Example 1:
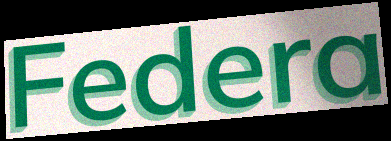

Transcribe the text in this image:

Federa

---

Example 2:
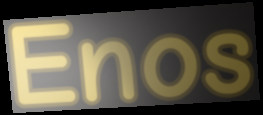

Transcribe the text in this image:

Enos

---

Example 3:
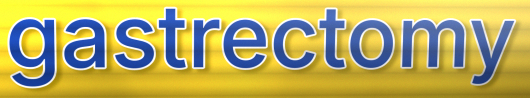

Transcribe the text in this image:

gastrectomy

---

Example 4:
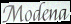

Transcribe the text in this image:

Modena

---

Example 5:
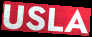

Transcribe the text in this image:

USLA